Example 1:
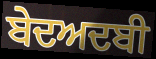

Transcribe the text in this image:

ਬੇਦਅਦਬੀ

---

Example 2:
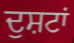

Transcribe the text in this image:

ਦੁਸ਼ਟਾਂ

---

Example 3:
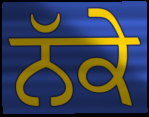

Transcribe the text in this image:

ਨੱਕੇ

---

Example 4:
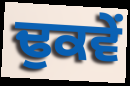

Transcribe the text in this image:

ਢੁਕਵੇਂ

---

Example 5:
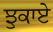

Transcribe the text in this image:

ਝੁਕਾਏ